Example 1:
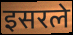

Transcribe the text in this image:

इसरले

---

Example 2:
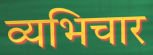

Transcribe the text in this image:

व्यभिचार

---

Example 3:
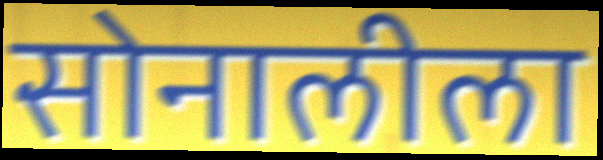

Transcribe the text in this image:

सोनालीला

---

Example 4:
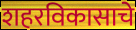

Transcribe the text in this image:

शहरविकासाचे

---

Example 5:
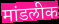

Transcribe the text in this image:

मांडलीक